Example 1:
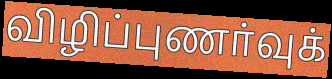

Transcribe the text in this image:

விழிப்புணர்வுக்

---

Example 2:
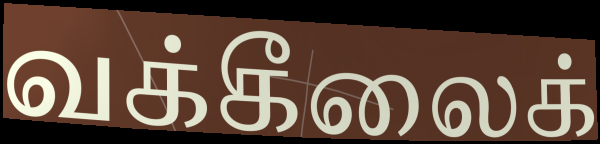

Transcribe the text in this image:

வக்கீலைக்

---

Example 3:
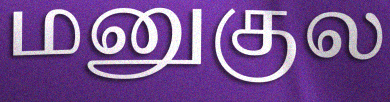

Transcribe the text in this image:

மனுகுல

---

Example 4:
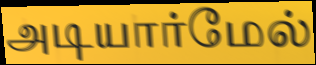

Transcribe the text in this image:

அடியார்மேல்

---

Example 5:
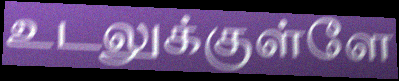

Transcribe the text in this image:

உடலுக்குள்ளே